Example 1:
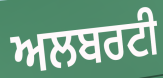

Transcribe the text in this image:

ਅਲਬਰਟੀ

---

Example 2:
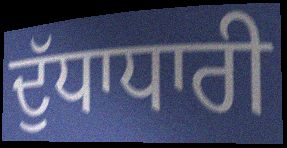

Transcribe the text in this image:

ਦੁੱਧਾਧਾਰੀ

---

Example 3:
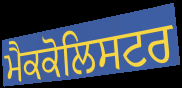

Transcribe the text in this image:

ਮੈਕਕੋਲਿਸਟਰ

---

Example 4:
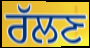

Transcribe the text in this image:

ਰੱਲਣ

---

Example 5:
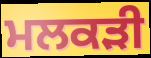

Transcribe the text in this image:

ਮਲਕੜੀ